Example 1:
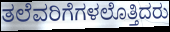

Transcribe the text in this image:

ತಲೆವರಿಗೆಗಳಲೊತ್ತಿದರು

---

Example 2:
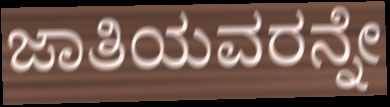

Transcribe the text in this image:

ಜಾತಿಯವರನ್ನೇ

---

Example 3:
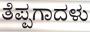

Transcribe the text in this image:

ತೆಪ್ಪಗಾದಳು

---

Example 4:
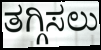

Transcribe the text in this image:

ತಗ್ಗಿಸಲು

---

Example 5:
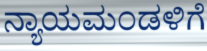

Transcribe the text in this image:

ನ್ಯಾಯಮಂಡಳಿಗೆ